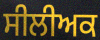
ਸੀਲੀਅਕ